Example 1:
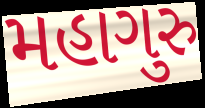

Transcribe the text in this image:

મહાગુરુ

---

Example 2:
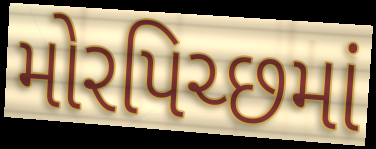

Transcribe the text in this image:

મોરપિચ્છમાં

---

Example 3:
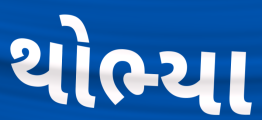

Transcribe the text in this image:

થોભ્યા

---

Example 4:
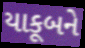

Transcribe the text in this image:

યાકૂબને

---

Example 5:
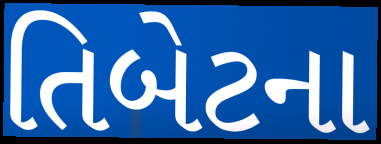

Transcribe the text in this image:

તિબેટના